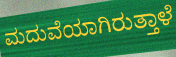
ಮದುವೆಯಾಗಿರುತ್ತಾಳೆ